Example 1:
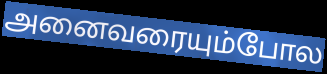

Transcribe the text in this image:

அனைவரையும்போல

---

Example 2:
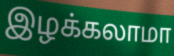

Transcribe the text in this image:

இழக்கலாமா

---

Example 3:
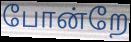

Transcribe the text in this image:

போன்றே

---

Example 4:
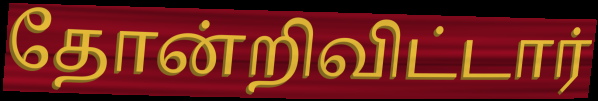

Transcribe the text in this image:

தோன்றிவிட்டார்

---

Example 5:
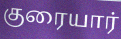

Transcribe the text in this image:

குரையார்